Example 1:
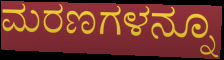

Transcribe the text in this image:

ಮರಣಗಳನ್ನೂ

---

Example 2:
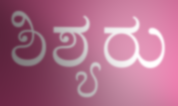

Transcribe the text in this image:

ಶಿಶ್ಯರು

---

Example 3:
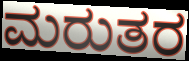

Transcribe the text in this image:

ಮರುತರ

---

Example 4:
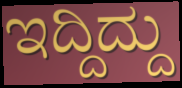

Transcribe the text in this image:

ಇದ್ದಿದ್ದು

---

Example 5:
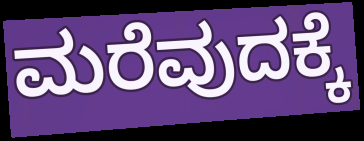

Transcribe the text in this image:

ಮರೆವುದಕ್ಕೆ